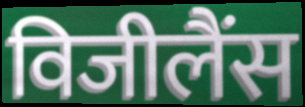
विजीलैंस